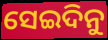
ସେଇଦିନୁ